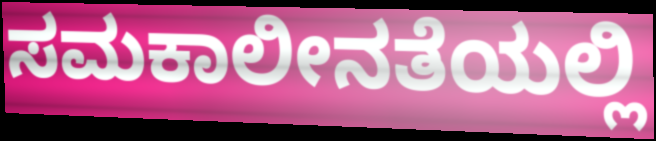
ಸಮಕಾಲೀನತೆಯಲ್ಲಿ